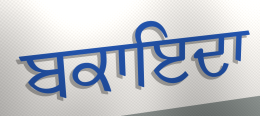
ਬਕਾਇਦਾ